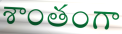
శాంతంగా